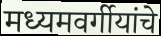
मध्यमवर्गीयांचे